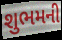
શુભમની